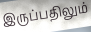
இருப்பதிலும்